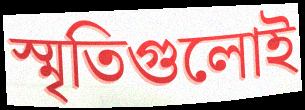
স্মৃতিগুলোই